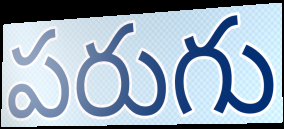
పరుగు